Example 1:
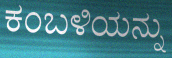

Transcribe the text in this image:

ಕಂಬಳಿಯನ್ನು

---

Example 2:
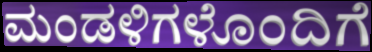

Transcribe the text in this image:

ಮಂಡಳಿಗಳೊಂದಿಗೆ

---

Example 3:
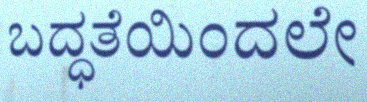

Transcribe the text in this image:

ಬದ್ಧತೆಯಿಂದಲೇ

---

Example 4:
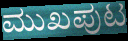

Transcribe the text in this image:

ಮುಖಪುಟ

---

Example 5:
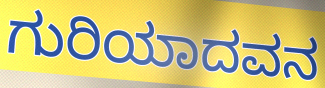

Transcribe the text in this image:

ಗುರಿಯಾದವನ